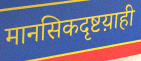
मानसिकदृष्टय़ाही